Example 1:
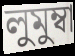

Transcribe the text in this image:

লুমুম্বা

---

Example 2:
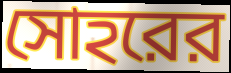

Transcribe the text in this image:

সোহরের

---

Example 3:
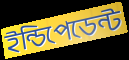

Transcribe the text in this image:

ইন্ডিপেডেন্ট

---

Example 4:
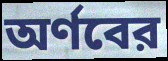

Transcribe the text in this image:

অর্ণবের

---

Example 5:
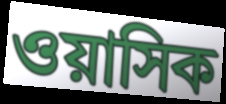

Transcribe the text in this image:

ওয়াসিক